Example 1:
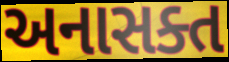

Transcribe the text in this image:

અનાસક્ત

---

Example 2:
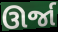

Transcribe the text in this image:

ઊર્જા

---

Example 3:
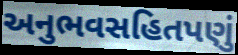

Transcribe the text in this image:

અનુભવસહિતપણું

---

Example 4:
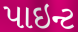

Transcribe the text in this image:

પાઇન્ટ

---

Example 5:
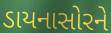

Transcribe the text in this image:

ડાયનાસોરને